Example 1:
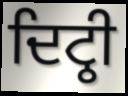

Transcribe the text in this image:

ਦਿਟ੍ਠੀ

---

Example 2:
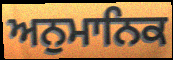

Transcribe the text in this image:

ਅਨੁਮਾਨਿਕ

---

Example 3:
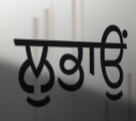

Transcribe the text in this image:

ਲੁਭਾਉਂ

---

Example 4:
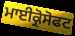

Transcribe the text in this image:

ਮਾਈਕ੍ਰੋਸੋਫਟ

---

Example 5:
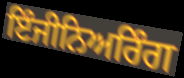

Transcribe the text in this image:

ਇੰਜੀਨਿਅਰਿੰਗ